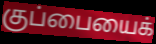
குப்பையைக்